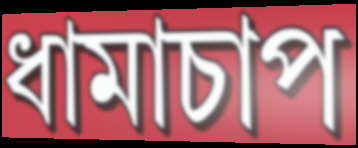
ধামাচাপ